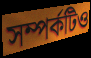
সম্পর্কটিও